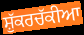
ਸ਼ੁੱਕਰਚੱਕੀਆ